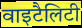
वाइटैलिटी